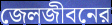
জেলজীবনের